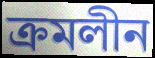
ক্রমলীন